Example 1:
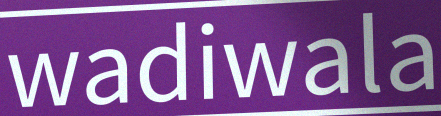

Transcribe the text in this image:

wadiwala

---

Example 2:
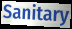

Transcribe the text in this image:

Sanitary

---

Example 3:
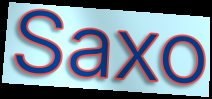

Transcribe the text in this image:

Saxo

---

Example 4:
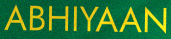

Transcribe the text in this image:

ABHIYAAN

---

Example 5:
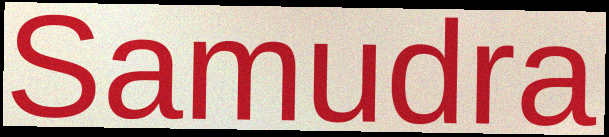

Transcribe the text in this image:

Samudra